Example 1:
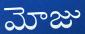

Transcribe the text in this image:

మోజు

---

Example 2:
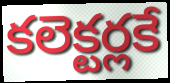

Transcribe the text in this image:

కలెక్టర్లకే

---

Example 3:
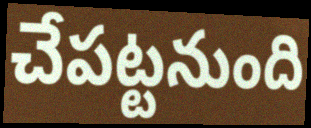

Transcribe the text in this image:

చేపట్టనుంది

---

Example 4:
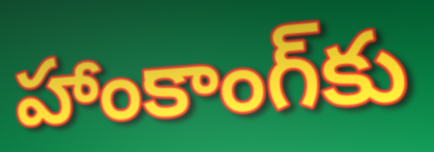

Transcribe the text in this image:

హాంకాంగ్‌కు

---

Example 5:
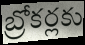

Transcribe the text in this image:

బ్రోకర్లకు